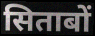
सिताबों